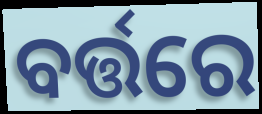
ବର୍ତ୍ତରେ